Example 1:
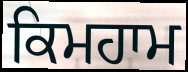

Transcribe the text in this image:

ਕਿਮਹਾਮ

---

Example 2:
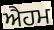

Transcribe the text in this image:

ਐਹਮ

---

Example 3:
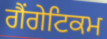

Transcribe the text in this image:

ਗੈਂਗੇਟਿਕਮ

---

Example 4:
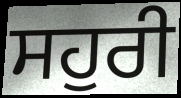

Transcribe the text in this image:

ਸਹੁਰੀ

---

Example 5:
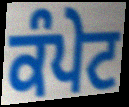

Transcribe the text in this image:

ਕੰਪੇਟ